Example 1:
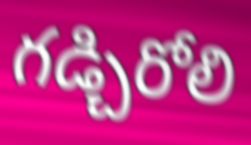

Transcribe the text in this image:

గడ్చిరోలి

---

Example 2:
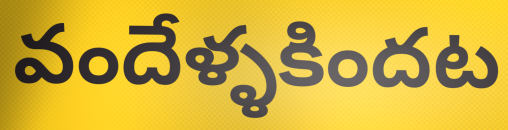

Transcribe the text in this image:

వందేళ్ళకిందట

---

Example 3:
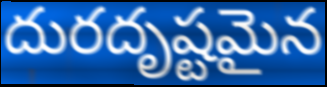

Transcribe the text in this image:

దురదృష్టమైన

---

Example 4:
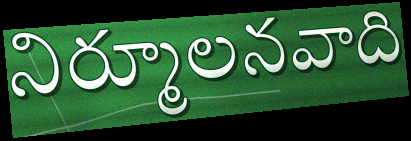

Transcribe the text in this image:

నిర్మూలనవాది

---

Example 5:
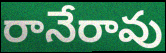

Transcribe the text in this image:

రానేరావు